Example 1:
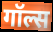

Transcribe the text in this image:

गॉल्स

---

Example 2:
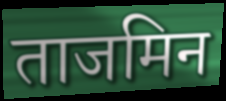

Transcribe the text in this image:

ताजमिन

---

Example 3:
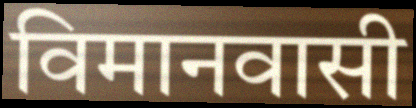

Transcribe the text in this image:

विमानवासी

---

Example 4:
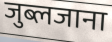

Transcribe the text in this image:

जुब्लजाना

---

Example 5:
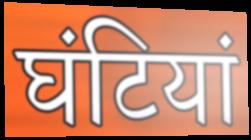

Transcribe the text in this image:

घंटियां